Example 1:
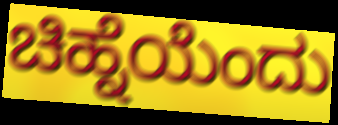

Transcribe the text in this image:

ಚಿಹ್ನೆಯೆಂದು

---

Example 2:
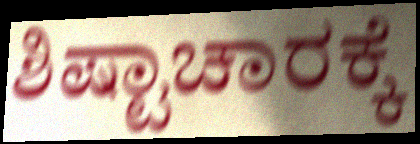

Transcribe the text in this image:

ಶಿಷ್ಟಾಚಾರಕ್ಕೆ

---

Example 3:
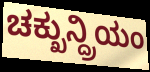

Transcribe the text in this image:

ಚಕ್ಖುನ್ದ್ರಿಯಂ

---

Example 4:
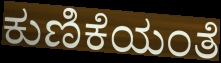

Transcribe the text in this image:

ಕುಣಿಕೆಯಂತೆ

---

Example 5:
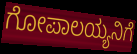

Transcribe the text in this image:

ಗೋಪಾಲಯ್ಯನಿಗೆ